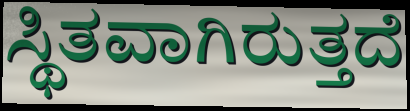
ಸ್ಥಿತವಾಗಿರುತ್ತದೆ